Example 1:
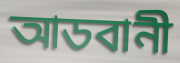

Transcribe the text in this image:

আডবানী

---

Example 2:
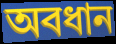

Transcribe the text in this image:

অবধান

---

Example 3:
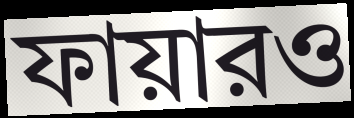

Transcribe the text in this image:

ফায়ারও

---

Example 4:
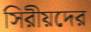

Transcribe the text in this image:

সিরীয়দের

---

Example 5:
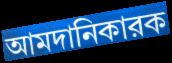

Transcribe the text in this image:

আমদানিকারক